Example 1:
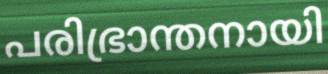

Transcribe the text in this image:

പരിഭ്രാന്തനായി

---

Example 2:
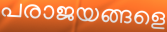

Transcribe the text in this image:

പരാജയങ്ങളെ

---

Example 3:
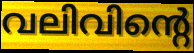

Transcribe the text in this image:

വലിവിന്റെ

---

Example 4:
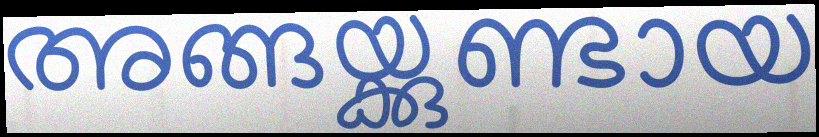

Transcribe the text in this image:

അങ്ങയ്ക്കുണ്ടായ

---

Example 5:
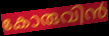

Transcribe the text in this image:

കോരുവിൻ